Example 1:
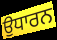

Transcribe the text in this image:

ਉਧਾਰਨ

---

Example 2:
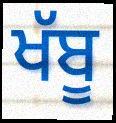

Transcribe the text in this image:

ਖੱਬੂ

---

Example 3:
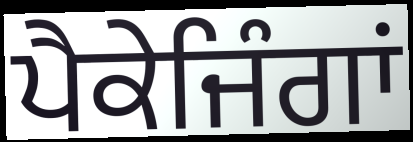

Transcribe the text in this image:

ਪੈਕੇਜਿੰਗਾਂ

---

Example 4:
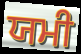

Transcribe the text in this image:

ਯਮੀ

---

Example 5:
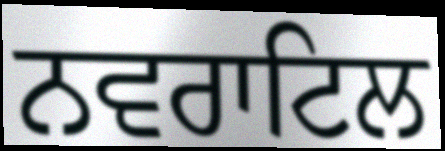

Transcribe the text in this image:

ਨਵਰਾਟਿਲ